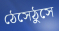
ঠেসেঠুসে